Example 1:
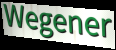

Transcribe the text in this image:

Wegener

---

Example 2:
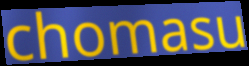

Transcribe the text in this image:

chomasu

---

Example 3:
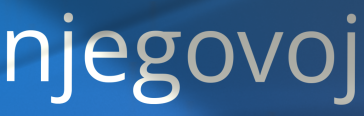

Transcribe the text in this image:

njegovoj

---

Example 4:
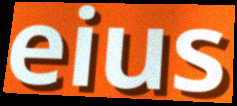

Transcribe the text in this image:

eius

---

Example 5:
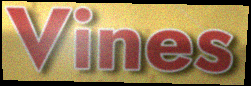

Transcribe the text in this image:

Vines